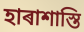
হাৰাশাস্তি